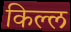
किल्ल